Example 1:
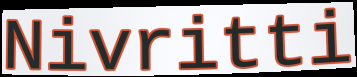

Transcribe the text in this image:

Nivritti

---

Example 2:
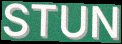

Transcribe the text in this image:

STUN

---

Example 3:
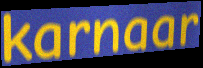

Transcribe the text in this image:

karnaar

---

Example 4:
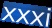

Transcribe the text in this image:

xxxi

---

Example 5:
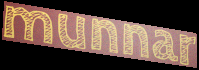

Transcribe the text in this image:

munnar